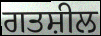
ਗਤਸ਼ੀਲ